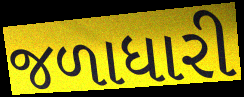
જળાધારી